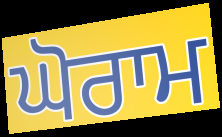
ਘੋਰਾਮ